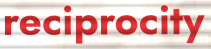
reciprocity